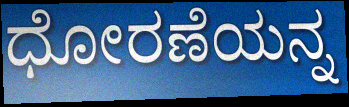
ಧೋರಣೆಯನ್ನ